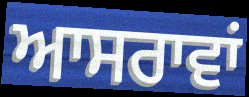
ਆਸਰਾਵਾਂ